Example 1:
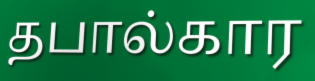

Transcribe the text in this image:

தபால்கார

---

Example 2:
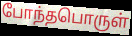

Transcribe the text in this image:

போந்தபொருள்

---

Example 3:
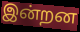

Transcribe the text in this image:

இன்றன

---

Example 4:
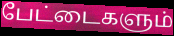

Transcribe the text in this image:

பேட்டைகளும்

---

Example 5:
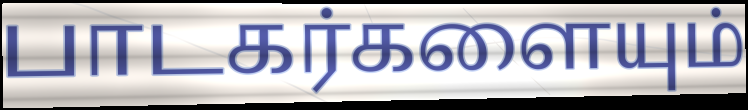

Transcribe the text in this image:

பாடகர்களையும்